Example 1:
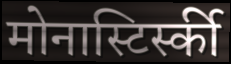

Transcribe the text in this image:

मोनास्टिर्स्की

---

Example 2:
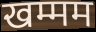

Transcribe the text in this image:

खम्मम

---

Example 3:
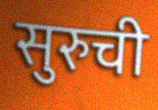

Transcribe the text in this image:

सुरुची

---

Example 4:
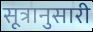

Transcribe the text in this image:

सूत्रानुसारी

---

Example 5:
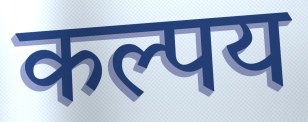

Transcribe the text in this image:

कल्पय